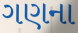
ગણના